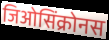
जिओसिंक्रोनस